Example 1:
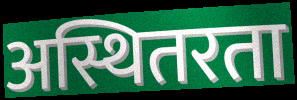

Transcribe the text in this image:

अस्थितरता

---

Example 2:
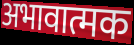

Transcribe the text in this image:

अभावात्मक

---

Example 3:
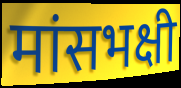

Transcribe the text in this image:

मांसभक्षी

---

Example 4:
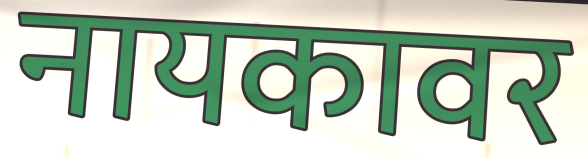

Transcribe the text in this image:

नायकावर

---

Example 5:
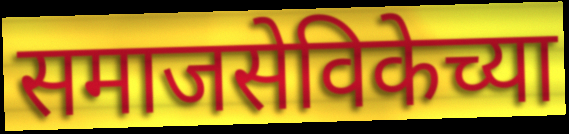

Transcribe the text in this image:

समाजसेविकेच्या